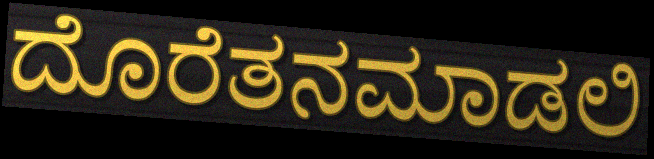
ದೊರೆತನಮಾಡಲಿ